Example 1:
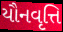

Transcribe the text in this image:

યૌનવૃત્તિ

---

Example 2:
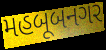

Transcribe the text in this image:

મહબૂબનગર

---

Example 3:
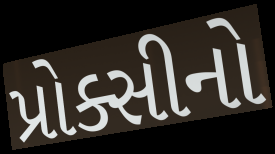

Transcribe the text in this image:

પ્રોક્સીનો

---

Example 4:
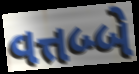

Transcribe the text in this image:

વત્તબ્બે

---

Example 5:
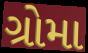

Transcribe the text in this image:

ગ્રોમા